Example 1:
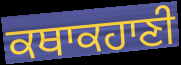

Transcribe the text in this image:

ਕਥਾਕਹਾਣੀ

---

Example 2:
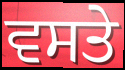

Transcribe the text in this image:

ਵਸਤੇ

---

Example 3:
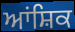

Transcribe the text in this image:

ਆਂਸ਼ਿਕ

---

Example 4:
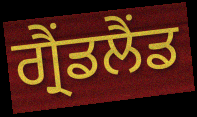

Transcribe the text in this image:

ਗ੍ਰੈਂਡਲੈਂਡ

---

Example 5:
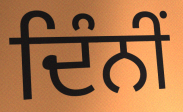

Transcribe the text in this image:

ਦਿੰਨੀਂ